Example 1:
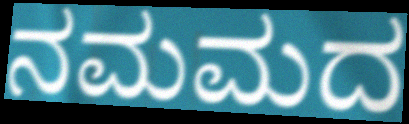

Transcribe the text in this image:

ನಮಮದ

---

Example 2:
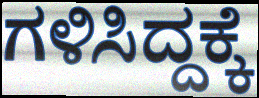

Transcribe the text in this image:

ಗಳಿಸಿದ್ದಕ್ಕೆ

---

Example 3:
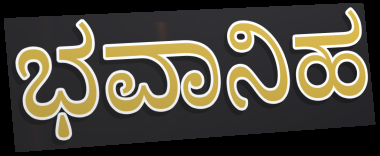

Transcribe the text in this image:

ಭವಾನಿಹ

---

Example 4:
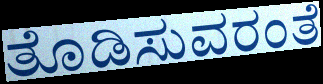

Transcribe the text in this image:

ತೊಡಿಸುವರಂತೆ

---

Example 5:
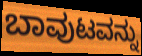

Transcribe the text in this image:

ಬಾವುಟವನ್ನು